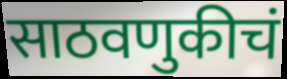
साठवणुकीचं